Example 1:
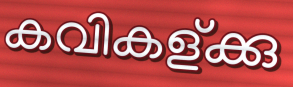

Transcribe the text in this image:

കവികള്ക്കു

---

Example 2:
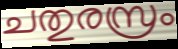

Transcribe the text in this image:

ചതുരസ്രം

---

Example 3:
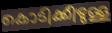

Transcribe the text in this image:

കൊടിക്കീഴുള്ള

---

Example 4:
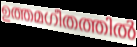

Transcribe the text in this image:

ഉത്തമഗീതത്തിൽ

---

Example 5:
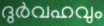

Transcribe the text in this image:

ദുർവഹവും